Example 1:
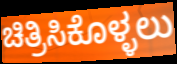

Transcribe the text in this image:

ಚಿತ್ರಿಸಿಕೊಳ್ಳಲು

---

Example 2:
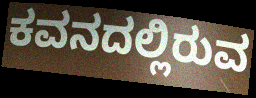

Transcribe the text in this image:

ಕವನದಲ್ಲಿರುವ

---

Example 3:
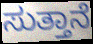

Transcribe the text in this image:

ಸುತ್ತಾನೆ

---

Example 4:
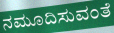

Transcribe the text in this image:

ನಮೂದಿಸುವಂತೆ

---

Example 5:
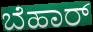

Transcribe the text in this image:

ಬೆಹಾರ್